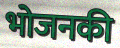
भोजनकी